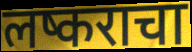
लष्कराचा